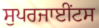
ਸੁਪਰਜਾਈਂਟਸ